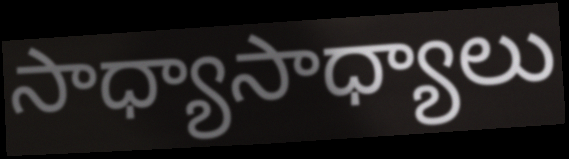
సాధ్యాసాధ్యాలు